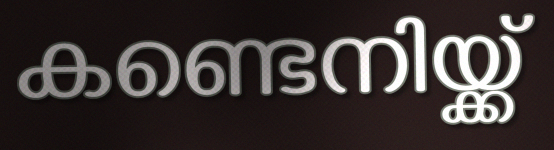
കണ്ടെനിയ്ക്ക്